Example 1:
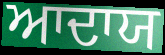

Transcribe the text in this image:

ਆਦਾਯ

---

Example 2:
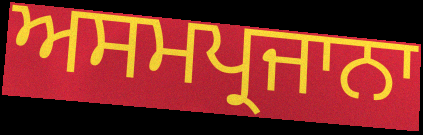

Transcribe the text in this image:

ਅਸਮਪ੍ਰਜਾਨਾ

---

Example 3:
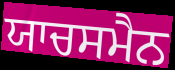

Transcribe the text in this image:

ਯਾਚਸਮੈਨ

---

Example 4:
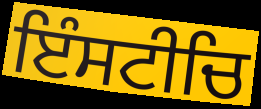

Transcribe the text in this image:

ਇੰਸਟੀਚਿ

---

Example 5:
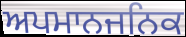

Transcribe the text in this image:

ਅਪਮਾਨਜਨਿਕ